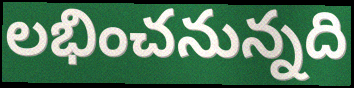
లభించనున్నది